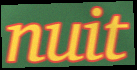
nuit